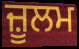
ਜ਼ੂਲਮ